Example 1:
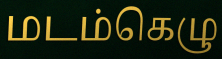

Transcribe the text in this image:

மடம்கெழு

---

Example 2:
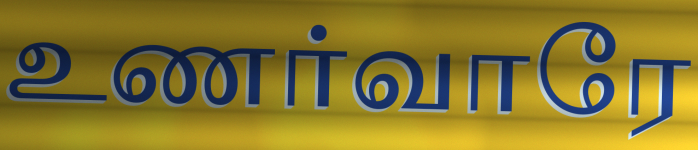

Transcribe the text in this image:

உணர்வாரே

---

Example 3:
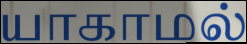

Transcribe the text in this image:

யாகாமல்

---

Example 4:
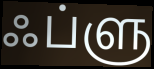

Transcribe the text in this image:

ஃப்ளு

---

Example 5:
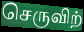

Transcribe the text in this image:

செருவிற்